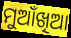
ମୁଆଁଖିଆ